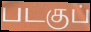
படகுப்